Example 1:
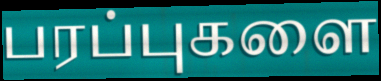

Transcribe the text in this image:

பரப்புகளை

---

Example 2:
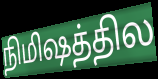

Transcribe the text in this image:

நிமிஷத்தில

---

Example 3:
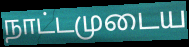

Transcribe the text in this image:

நாட்டமுடைய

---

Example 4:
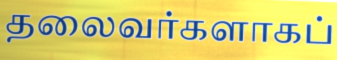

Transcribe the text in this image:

தலைவர்களாகப்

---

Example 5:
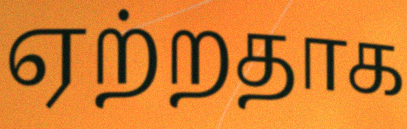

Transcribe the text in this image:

ஏற்றதாக